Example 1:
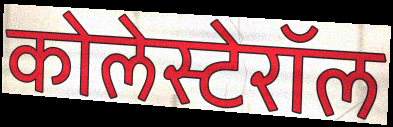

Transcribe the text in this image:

कोलेस्टेरॉल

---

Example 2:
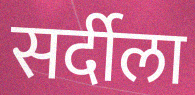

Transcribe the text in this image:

सर्दीला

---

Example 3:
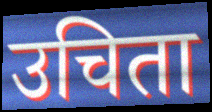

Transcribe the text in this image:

उचिता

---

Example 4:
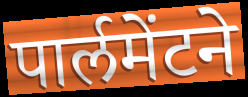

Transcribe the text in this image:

पार्लमेंटने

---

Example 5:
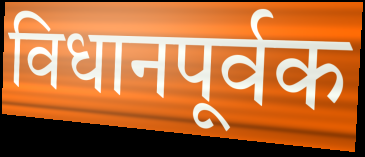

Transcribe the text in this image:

विधानपूर्वक